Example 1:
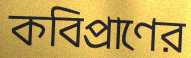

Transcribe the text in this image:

কবিপ্রাণের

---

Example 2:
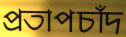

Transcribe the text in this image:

প্রতাপচাঁদ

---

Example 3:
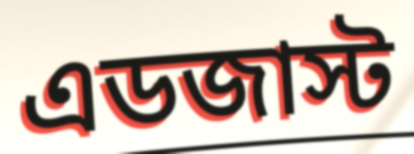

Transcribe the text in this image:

এডজাস্ট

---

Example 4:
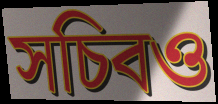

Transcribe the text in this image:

সচিবও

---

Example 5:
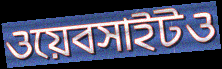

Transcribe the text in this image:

ওয়েবসাইটও